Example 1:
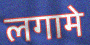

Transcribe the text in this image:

लगामे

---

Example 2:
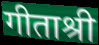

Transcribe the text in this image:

गीताश्री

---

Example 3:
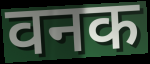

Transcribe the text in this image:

वनक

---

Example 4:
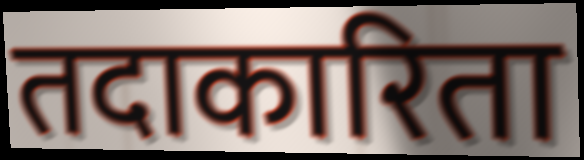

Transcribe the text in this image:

तदाकारिता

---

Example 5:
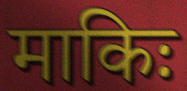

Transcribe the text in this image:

माकिः